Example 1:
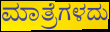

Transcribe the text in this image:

ಮಾತ್ರೆಗಳದು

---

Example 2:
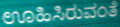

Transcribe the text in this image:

ಊಹಿಸಿರುವಂತೆ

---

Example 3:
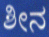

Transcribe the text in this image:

ಶೀನ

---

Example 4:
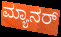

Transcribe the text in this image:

ಮ್ಯಾನರ್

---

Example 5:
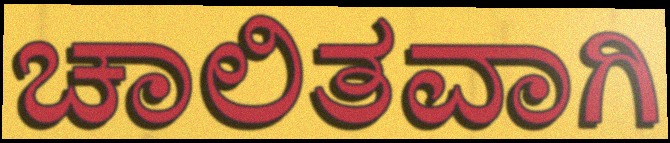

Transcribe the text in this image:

ಚಾಲಿತವಾಗಿ